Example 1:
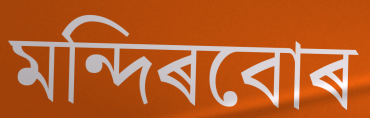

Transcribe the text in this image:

মন্দিৰবোৰ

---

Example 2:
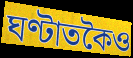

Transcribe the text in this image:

ঘণ্টাতকৈও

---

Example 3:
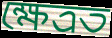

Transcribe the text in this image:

ক্ষেত্ৰত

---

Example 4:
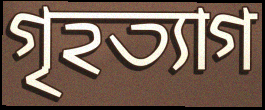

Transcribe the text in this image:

গৃহত্যাগ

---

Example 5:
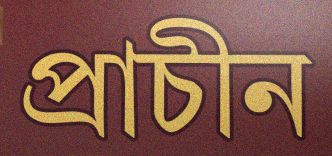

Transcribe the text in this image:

প্ৰাচীন